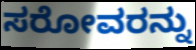
ಸರೋವರನ್ನು